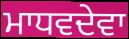
ਮਾਧਵਦੇਵਾ